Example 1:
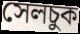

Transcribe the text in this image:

সেলচুক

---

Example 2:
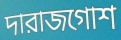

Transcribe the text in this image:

দারাজগোশ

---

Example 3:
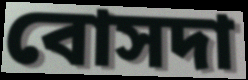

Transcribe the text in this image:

বোসদা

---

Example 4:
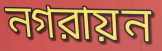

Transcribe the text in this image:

নগরায়ন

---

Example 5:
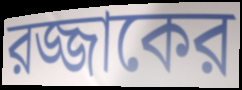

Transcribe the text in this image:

রজ্জাকের